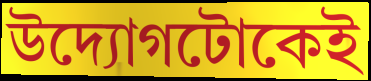
উদ্যোগটোকেই